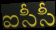
ఐసీసీ